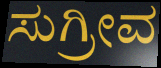
ಸುಗ್ರೀವ